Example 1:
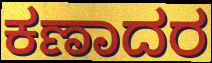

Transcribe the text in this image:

ಕಣಾದರ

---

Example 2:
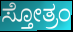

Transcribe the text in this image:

ಸ್ತೋತ್ರಂ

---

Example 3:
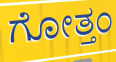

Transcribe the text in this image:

ಗೋತ್ತಂ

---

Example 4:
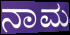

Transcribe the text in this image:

ನಾಮ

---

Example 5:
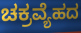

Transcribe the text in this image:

ಚಕ್ರವ್ಯೆಹದ